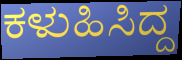
ಕಳುಹಿಸಿದ್ದ